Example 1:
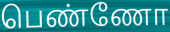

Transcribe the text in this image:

பெண்ணோ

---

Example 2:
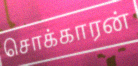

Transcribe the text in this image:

சொக்காரன்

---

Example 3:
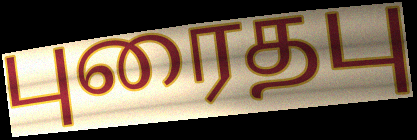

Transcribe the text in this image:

புரைதபு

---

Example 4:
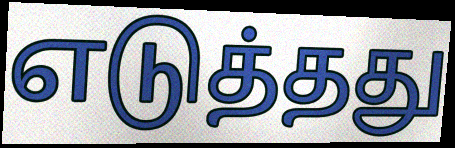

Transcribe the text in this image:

எடுத்தது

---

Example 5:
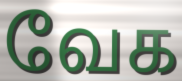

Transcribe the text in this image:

வேக